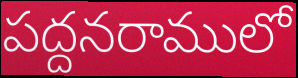
పద్దనరాములో